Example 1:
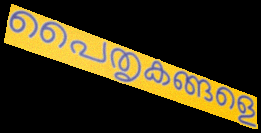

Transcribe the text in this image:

പൈതൃകങ്ങളെ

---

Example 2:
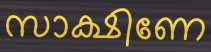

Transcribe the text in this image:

സാക്ഷിണേ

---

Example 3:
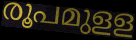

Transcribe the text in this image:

രൂപമുളള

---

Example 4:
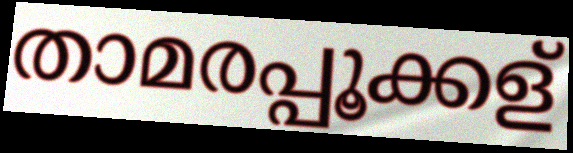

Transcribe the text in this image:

താമരപ്പൂക്കള്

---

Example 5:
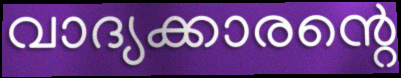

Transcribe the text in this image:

വാദ്യക്കാരന്റെ